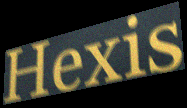
Hexis